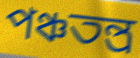
পঞ্চতন্ত্ৰ